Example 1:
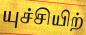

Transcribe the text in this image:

யுச்சியிற்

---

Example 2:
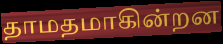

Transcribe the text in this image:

தாமதமாகின்றன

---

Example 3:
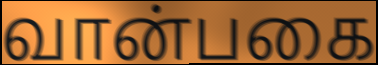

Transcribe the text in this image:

வான்பகை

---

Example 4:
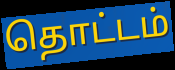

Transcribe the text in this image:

தொட்டம்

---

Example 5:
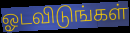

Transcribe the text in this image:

ஓடவிடுங்கள்